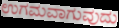
ಉಗಮವಾಗುವುದು